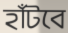
হাঁটবে